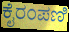
ಕೈರಂಪಣಿ